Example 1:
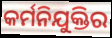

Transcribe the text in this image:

କର୍ମନିଯୁକ୍ତିର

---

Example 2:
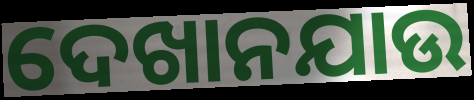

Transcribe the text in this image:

ଦେଖାନଯାଉ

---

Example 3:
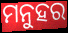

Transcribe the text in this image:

ମନୁହର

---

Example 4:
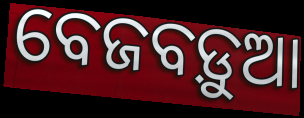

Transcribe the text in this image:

ବେଜବଡ଼ୁଆ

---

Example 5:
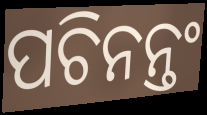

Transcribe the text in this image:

ପଚିନନ୍ତଂ